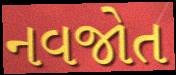
નવજોત